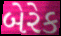
બેરેક